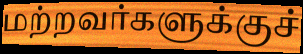
மற்றவர்களுக்குச்